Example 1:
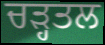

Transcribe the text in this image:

ਚੜ੍ਹਤਲ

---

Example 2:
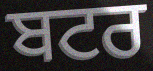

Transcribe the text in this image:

ਬਟਰ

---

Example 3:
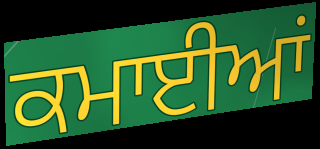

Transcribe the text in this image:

ਕਮਾਈਆਂ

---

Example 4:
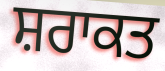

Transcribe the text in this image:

ਸ਼ਰਾਕਤ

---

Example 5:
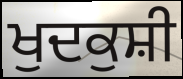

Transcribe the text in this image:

ਖੁਦਕੁਸ਼ੀ